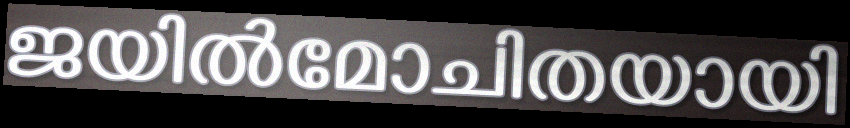
ജയിൽമോചിതയായി